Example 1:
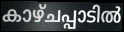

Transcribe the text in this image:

കാഴ്ചപ്പാടിൽ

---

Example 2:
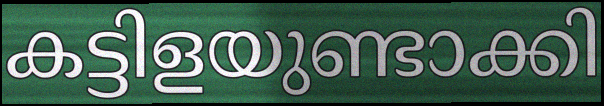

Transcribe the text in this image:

കട്ടിളയുണ്ടാക്കി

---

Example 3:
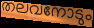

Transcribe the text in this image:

തലവനോടും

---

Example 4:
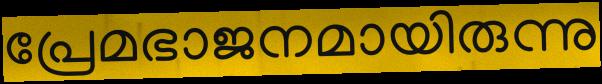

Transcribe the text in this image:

പ്രേമഭാജനമായിരുന്നു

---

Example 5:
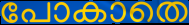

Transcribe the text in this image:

പോകാതെ